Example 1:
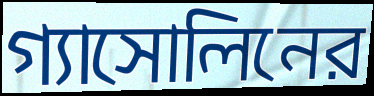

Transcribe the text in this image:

গ্যাসোলিনের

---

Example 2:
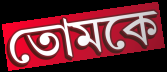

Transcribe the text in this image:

তোমকে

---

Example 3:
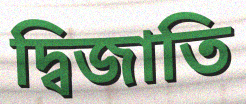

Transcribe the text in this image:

দ্বিজাতি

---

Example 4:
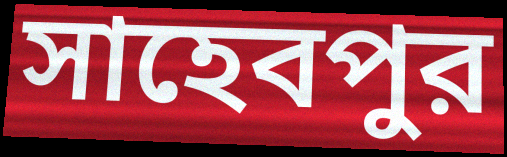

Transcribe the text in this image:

সাহেবপুর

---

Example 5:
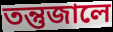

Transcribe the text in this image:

তন্তুজালে